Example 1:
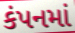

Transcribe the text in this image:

કંપનમાં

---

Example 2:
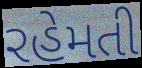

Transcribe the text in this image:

રહેમતી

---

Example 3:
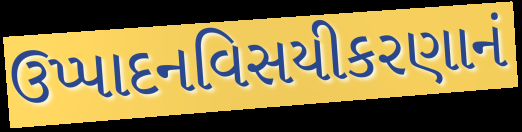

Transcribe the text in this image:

ઉપ્પાદનવિસયીકરણાનં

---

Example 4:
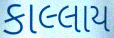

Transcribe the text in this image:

કાલ્લાય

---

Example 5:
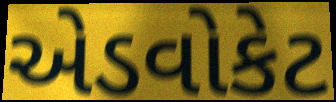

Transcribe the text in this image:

એડવોકેટ